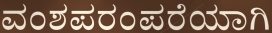
ವಂಶಪರಂಪರೆಯಾಗಿ